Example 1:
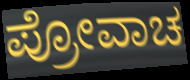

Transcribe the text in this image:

ಪ್ರೋವಾಚ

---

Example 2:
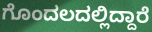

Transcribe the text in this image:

ಗೊಂದಲದಲ್ಲಿದ್ದಾರೆ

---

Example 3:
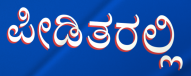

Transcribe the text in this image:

ಪೀಡಿತರಲ್ಲಿ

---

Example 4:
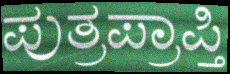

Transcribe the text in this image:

ಪುತ್ರಪ್ರಾಪ್ತಿ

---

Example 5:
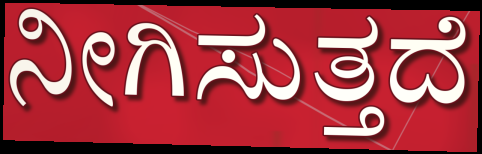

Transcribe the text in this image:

ನೀಗಿಸುತ್ತದೆ